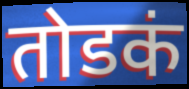
तोडकं